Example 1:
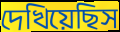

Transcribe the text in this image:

দেখিয়েছিস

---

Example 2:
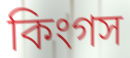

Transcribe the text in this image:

কিংগস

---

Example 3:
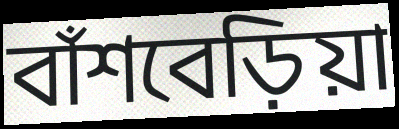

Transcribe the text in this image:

বাঁশবেড়িয়া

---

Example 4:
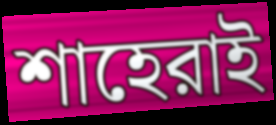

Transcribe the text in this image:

শাহেরাই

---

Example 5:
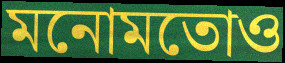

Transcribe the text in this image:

মনোমতোও